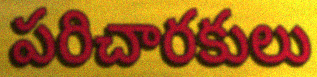
పరిచారకులు